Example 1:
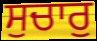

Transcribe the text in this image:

ਸੁਚਾਰੁ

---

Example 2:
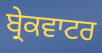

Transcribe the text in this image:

ਬ੍ਰੇਕਵਾਟਰ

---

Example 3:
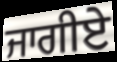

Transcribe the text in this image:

ਜਾਗੀਏ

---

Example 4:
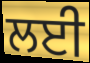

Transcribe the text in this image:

ਲਈ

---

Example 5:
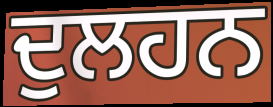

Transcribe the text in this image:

ਦੁਲਹਨ